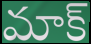
మాక్